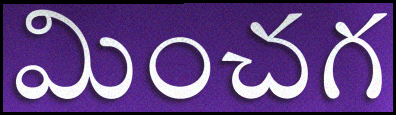
మించగ